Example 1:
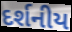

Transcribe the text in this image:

દર્શનીય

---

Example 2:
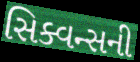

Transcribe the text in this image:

સિક્વન્સની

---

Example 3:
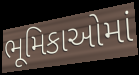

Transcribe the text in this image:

ભૂમિકાઓમાં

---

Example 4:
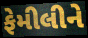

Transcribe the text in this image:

ફેમીલીને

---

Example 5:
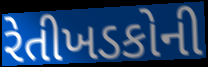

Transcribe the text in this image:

રેતીખડકોની